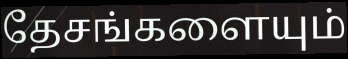
தேசங்களையும்